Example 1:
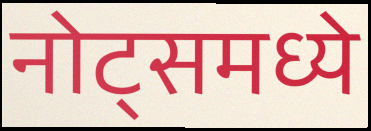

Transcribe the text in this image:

नोट्समध्ये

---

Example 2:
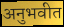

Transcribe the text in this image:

अनुभवीत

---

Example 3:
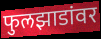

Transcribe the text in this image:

फुलझाडांवर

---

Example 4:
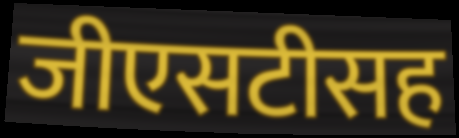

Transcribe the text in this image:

जीएसटीसह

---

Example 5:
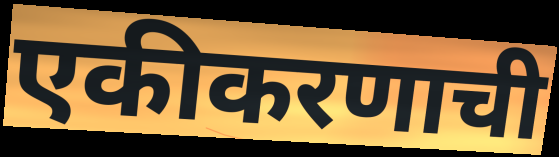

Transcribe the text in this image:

एकीकरणाची